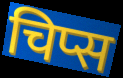
चिप्‍स